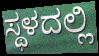
ಸ್ಥಳದಲ್ಲಿ